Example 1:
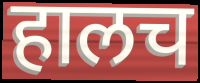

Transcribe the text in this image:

हालच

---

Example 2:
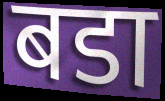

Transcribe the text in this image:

बडा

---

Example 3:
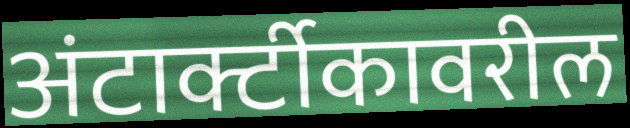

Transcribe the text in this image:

अंटार्क्टीकावरील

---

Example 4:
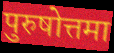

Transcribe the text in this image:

पुरुषोत्तमा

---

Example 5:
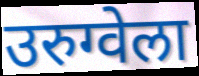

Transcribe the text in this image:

उरुग्वेला